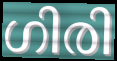
ഗിരി